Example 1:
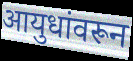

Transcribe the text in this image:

आयुधांवरून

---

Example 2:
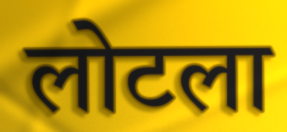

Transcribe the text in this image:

लोटला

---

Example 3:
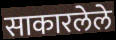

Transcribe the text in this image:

साकारलेले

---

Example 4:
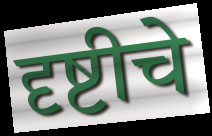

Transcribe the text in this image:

दृष्टीचे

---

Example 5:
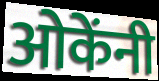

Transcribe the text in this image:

ओकेंनी